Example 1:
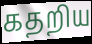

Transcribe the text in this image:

கதறிய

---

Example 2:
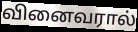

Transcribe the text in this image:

வினைவரால்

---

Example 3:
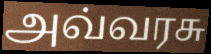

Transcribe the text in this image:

அவ்வரசு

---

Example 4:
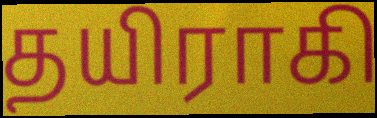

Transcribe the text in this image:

தயிராகி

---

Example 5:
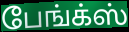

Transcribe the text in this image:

பேங்க்ஸ்